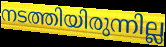
നടത്തിയിരുന്നില്ല